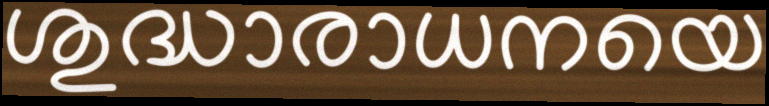
ശുദ്ധാരാധനയെ